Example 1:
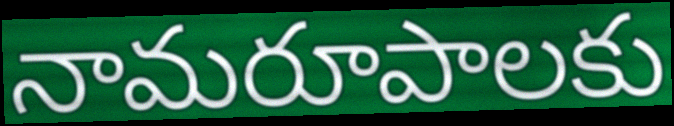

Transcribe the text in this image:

నామరూపాలకు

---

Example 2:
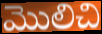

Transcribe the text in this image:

మొలిచి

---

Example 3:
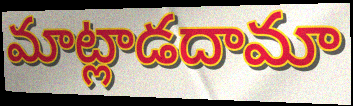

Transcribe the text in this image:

మాట్లాడదామా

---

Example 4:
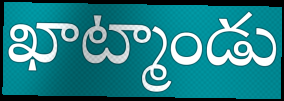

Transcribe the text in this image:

ఖాట్మాండు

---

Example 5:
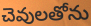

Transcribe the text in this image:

చెవులతోను